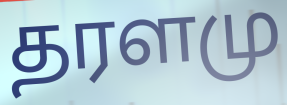
தரளமு